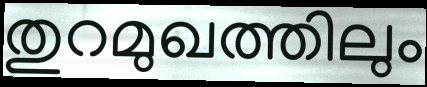
തുറമുഖത്തിലും